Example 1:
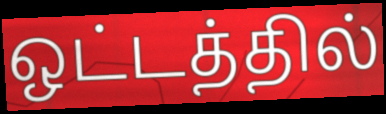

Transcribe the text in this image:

ஒட்டத்தில்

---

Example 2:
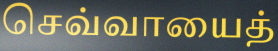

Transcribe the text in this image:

செவ்வாயைத்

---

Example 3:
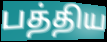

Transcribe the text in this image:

பத்திய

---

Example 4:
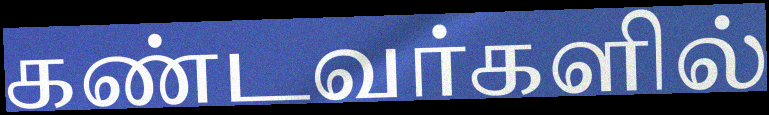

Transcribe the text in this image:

கண்டவர்களில்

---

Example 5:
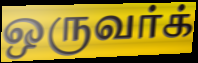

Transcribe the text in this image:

ஒருவர்க்